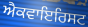
ਐਕਵਾਇਰਿਸਟ